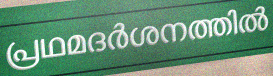
പ്രഥമദർശനത്തിൽ